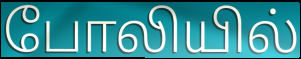
போலியில்